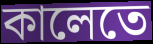
কালেতে